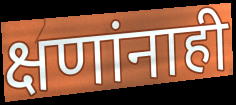
क्षणांनाही